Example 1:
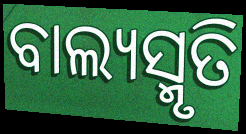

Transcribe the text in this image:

ବାଲ୍ୟସ୍ମୃତି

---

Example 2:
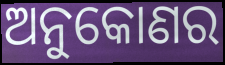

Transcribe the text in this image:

ଅନୁକୋଣର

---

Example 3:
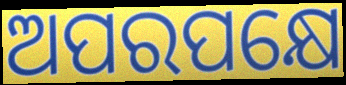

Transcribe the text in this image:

ଅପରପକ୍ଷେ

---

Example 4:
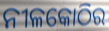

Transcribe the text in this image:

ନୀଳକୋଠିର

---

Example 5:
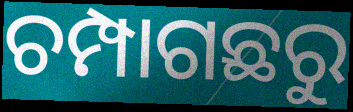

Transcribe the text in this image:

ଚମ୍ପାଗଛରୁ